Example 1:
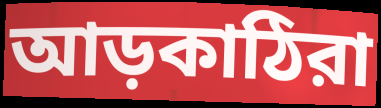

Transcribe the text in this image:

আড়কাঠিরা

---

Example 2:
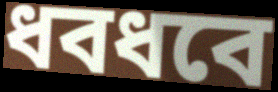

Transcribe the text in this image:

ধবধবে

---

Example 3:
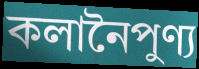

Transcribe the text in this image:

কলানৈপুণ্য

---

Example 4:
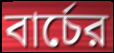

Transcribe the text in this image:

বার্চের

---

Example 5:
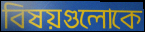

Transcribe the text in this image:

বিষয়গুলোকে